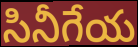
సినీగేయ